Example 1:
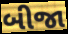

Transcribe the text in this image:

બીજા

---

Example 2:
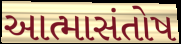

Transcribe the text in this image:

આત્માસંતોષ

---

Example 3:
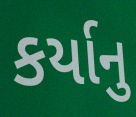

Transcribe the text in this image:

કર્યાનુ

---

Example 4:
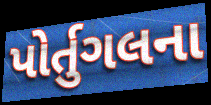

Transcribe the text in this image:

પોર્તુગલના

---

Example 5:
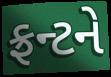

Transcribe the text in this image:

ફ્રન્ટને